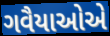
ગવૈયાઓએ